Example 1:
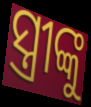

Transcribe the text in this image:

ସ୍ତ୍ରୀଙ୍କୁ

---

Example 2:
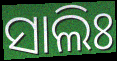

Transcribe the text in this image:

ସାଲିଃ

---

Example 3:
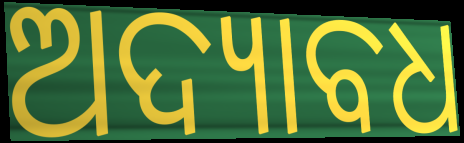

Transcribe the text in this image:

ଅଦ୍ୟାବଧ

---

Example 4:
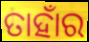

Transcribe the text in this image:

ତାହାଁର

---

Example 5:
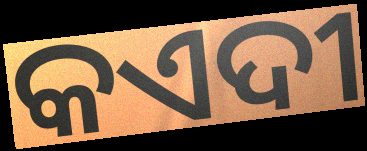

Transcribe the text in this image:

କଏଦୀ